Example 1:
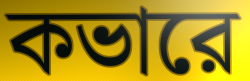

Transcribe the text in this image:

কভারে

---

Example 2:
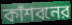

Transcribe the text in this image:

কাঁশবনের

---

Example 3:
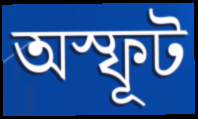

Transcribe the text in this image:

অস্ফূট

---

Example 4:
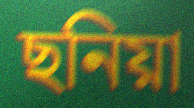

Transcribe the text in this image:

ছনিয়া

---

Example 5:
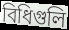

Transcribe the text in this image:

বিধিগুলি